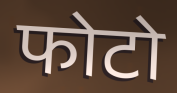
फोटो